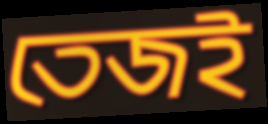
তেজই